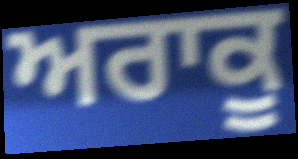
ਅਰਾਕੂ